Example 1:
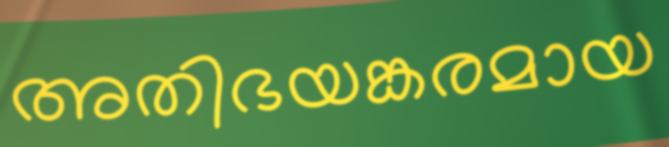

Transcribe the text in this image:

അതിഭയങ്കരമായ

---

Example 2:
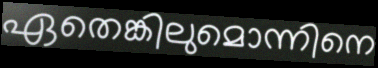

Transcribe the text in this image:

ഏതെങ്കിലുമൊന്നിനെ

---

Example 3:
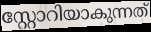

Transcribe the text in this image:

സ്റ്റോറിയാകുന്നത്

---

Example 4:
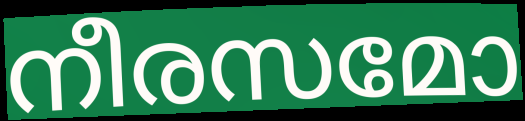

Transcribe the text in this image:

നീരസമോ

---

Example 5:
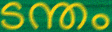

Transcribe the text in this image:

ടന്തം